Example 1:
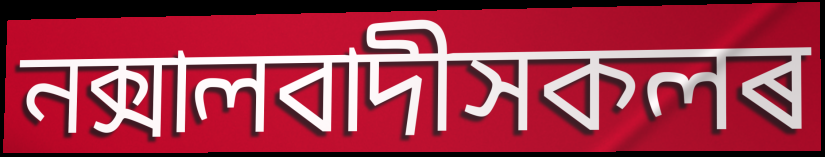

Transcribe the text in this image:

নক্সালবাদীসকলৰ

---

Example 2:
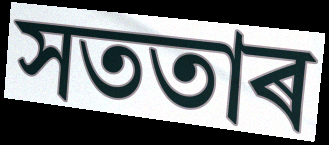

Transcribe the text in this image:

সততাৰ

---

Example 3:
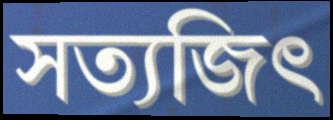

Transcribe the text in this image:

সত্যজিৎ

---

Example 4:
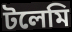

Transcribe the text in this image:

টলেমি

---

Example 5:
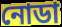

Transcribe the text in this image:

নোডা